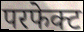
परफेक्ट